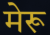
मेरू